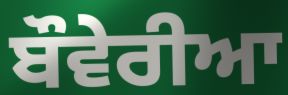
ਬੌਵੇਰੀਆ